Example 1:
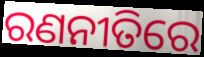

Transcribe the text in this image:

ରଣନୀତିରେ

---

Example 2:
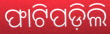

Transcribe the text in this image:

ଫାଟିପଡ଼ିଲି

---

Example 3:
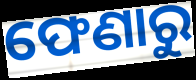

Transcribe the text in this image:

ଫେଣାରୁ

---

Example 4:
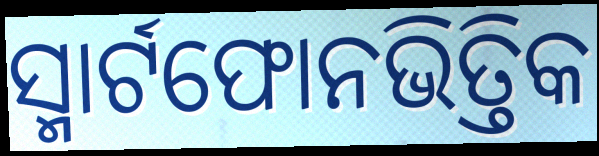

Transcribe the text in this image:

ସ୍ମାର୍ଟଫୋନଭିତ୍ତିକ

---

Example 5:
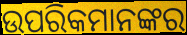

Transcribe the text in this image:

ଉପରିକମାନଙ୍କର